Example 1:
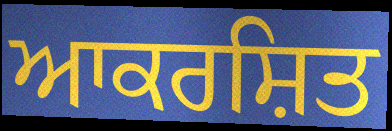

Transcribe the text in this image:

ਆਕਰਸ਼ਿਤ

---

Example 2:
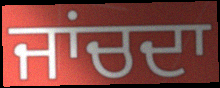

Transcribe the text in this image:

ਜਾਂਚਦਾ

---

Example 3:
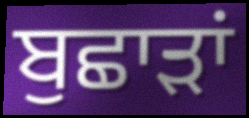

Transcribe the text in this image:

ਬੁਛਾੜਾਂ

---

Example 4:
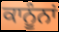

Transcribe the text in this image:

ਕਾਨੂੰਨਾਂ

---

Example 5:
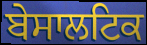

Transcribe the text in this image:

ਬੇਸਾਲਟਿਕ